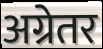
अग्रेतर